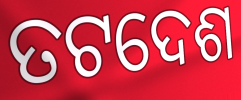
ତଟଦେଶ